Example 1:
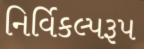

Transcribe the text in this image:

નિર્વિકલ્પરૂપ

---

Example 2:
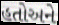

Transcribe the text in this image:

હતોઅને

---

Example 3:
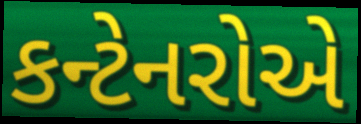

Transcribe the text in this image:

કન્ટેનરોએ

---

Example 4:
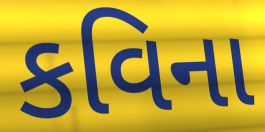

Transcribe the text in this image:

કવિના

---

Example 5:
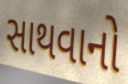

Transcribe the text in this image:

સાથવાનો